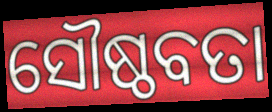
ସୌଷ୍ଠବତା